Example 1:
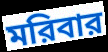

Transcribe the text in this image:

মরিবার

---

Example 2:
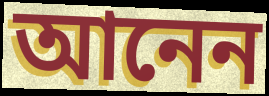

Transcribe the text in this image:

আনেন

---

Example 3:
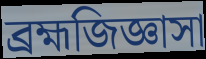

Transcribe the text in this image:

ব্রহ্মজিজ্ঞাসা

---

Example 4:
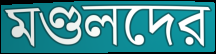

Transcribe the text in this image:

মণ্ডলদের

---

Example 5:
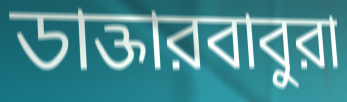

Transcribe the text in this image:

ডাক্তারবাবুরা